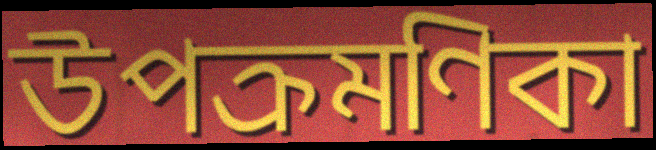
উপক্রমণিকা